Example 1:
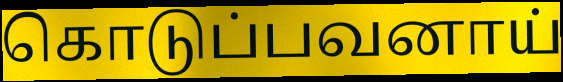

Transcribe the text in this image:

கொடுப்பவனாய்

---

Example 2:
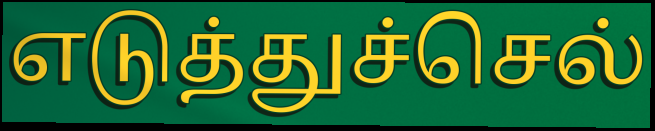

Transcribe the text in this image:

எடுத்துச்செல்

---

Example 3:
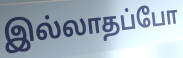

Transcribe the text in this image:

இல்லாதப்போ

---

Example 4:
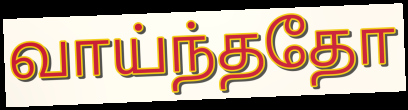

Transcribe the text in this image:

வாய்ந்ததோ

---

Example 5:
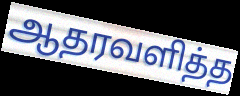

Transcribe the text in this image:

ஆதரவளித்த